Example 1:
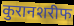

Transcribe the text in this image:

कुरानशरीफ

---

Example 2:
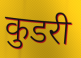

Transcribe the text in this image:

कुडरी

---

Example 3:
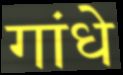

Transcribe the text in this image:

गांधे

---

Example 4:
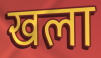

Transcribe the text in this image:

खला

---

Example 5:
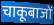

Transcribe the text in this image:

चाकूबाजों